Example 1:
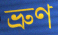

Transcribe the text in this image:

ভ্ৰুণ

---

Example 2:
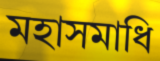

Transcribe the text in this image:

মহাসমাধি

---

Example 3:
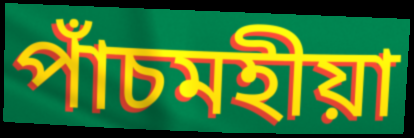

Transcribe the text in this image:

পাঁচমহীয়া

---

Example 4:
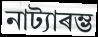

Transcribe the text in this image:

নাট্যাৰম্ভ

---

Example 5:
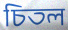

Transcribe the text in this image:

চিতল